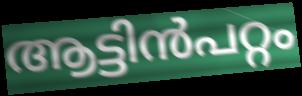
ആട്ടിൻപറ്റം